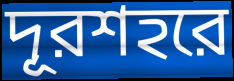
দূরশহরে